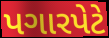
પગારપેટે